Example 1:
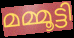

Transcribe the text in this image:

മമ്മൂട്ടി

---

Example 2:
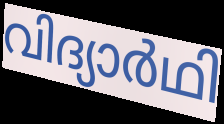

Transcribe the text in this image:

വിദ്യാർഥി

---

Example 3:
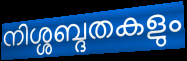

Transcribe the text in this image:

നിശ്ശബ്ദതകളും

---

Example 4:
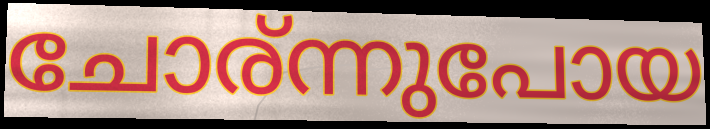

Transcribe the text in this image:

ചോര്ന്നുപോയ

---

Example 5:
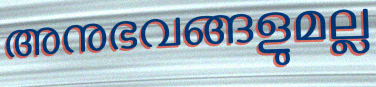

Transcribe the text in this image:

അനുഭവങ്ങളുമല്ല